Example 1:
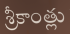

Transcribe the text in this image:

శ్రీకాంత్లు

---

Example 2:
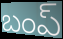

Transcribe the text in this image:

బంప్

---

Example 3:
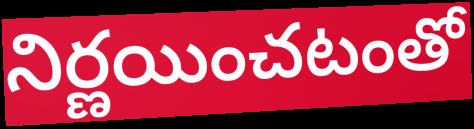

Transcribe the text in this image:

నిర్ణయించటంతో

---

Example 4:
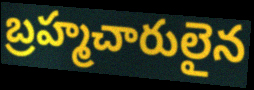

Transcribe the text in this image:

బ్రహ్మచారులైన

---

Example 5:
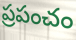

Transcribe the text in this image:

ప్రపంచం